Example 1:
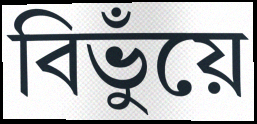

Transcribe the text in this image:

বিভুঁয়ে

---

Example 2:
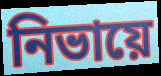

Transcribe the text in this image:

নিভায়ে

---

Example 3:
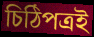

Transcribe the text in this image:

চিঠিপত্রই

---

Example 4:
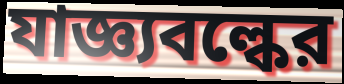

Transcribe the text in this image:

যাজ্ঞ্যবল্কের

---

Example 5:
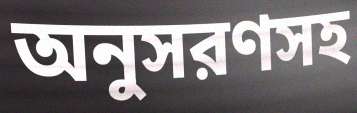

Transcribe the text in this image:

অনুসরণসহ